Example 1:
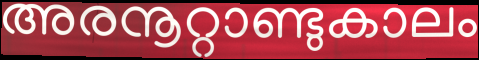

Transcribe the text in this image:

അരനൂറ്റാണ്ടുകാലം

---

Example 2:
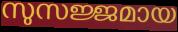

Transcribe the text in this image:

സുസജ്ജമായ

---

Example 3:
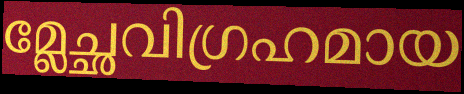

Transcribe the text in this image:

മ്ലേച്ഛവിഗ്രഹമായ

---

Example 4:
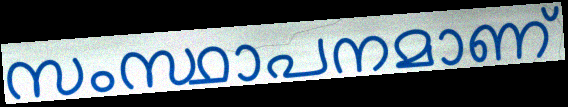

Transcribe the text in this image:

സംസ്ഥാപനമാണ്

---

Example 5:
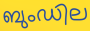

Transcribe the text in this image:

ബുംഡില